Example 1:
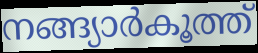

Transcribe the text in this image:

നങ്ങ്യാർകൂത്ത്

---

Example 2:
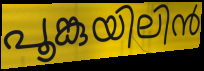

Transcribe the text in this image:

പൂങ്കുയിലിൻ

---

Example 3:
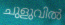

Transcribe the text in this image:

ചുളുവിൽ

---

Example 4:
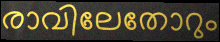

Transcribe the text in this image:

രാവിലേതോറും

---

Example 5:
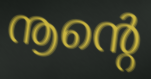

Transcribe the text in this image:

നൂന്റെ